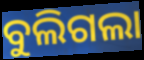
ବୁଲିଗଲା